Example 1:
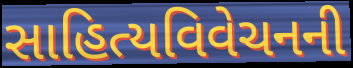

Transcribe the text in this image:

સાહિત્યવિવેચનની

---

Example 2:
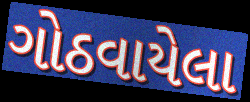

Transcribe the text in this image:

ગોઠવાયેલા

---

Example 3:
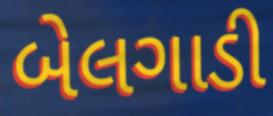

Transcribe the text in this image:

બેલગાડી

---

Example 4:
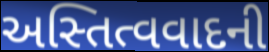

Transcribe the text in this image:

અસ્તિત્વવાદની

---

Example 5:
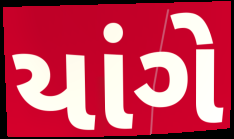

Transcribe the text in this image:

યાંગે